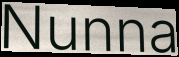
Nunna